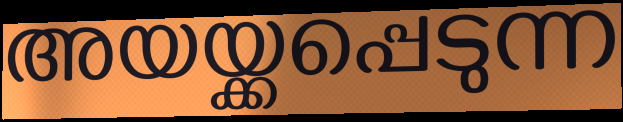
അയയ്ക്കപ്പെടുന്ന